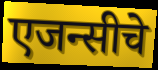
एजन्सीचे